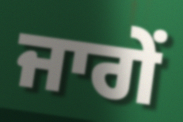
ਜਾਗੇਂ